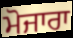
ਮੋਜਾਰਾ